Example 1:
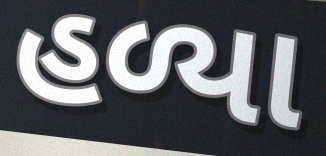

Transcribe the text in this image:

હળ્યા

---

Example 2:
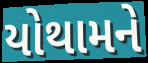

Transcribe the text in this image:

યોથામને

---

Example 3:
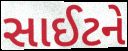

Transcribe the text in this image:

સાઈટને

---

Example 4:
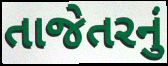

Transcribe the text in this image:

તાજેતરનું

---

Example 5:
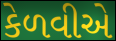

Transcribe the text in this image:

કેળવીએ